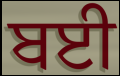
ਬਈ